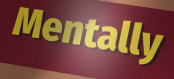
Mentally